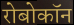
रोबोकॉन